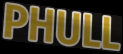
PHULL